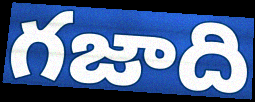
గజాది